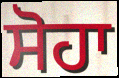
ਸੋਹਾ